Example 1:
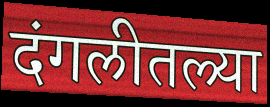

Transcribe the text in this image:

दंगलीतल्या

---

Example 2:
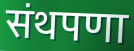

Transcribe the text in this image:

संथपणा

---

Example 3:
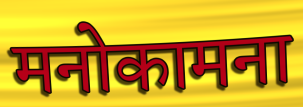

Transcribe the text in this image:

मनोकामना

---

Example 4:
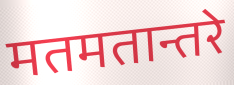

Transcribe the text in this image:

मतमतान्तरे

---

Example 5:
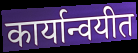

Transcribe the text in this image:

कार्यान्वयीत